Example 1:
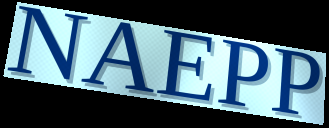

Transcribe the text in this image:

NAEPP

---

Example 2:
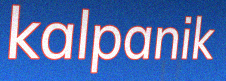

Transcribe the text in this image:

kalpanik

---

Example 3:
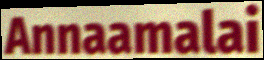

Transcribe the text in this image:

Annaamalai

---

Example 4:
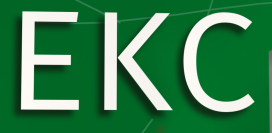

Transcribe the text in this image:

EKC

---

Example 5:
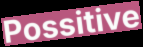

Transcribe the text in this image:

Possitive